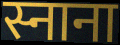
स्नाना